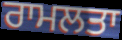
ਰਾਮਲਤਾ